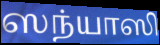
ஸந்யாஸி